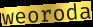
weoroda